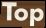
Top